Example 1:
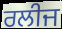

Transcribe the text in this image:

ਰਲੀਜ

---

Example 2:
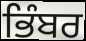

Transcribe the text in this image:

ਭਿੰਬਰ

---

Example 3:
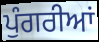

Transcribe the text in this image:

ਪੁੰਗਰੀਆਂ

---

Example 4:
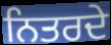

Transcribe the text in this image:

ਨਿਤਰਦੇ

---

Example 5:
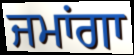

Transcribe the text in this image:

ਜਮਾਂਗਾ